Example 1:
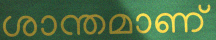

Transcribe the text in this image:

ശാന്തമാണ്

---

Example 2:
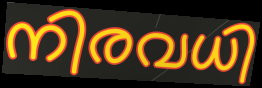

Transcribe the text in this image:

നിരവധി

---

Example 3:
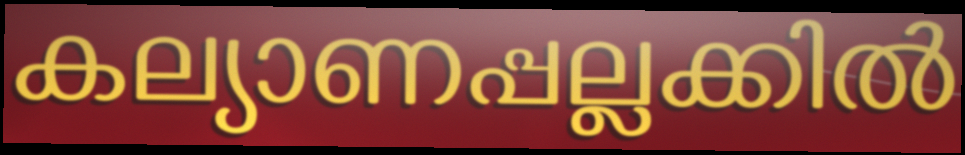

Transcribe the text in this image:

കല്യാണപ്പല്ലക്കിൽ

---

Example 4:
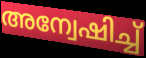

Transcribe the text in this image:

അന്വേഷിച്ച്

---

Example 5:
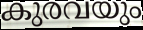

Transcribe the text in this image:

കുരവയും